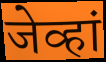
जेव्हां